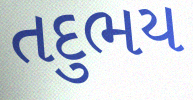
તદુભય